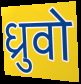
ध्रुवो